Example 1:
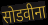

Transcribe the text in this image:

सोडवीना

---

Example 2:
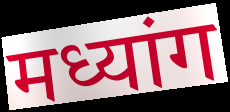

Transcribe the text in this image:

मध्यांग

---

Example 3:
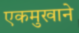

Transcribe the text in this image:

एकमुखाने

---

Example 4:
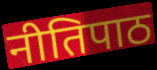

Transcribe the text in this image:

नीतिपाठ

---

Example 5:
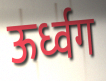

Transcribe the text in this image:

ऊर्ध्वग